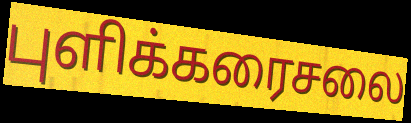
புளிக்கரைசலை